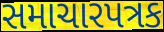
સમાચારપત્રક